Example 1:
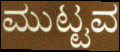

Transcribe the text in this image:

ಮುಟ್ಟವ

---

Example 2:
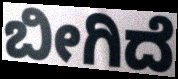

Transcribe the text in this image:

ಬೀಗಿದೆ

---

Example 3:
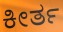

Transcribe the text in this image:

ಕೀರ್ತ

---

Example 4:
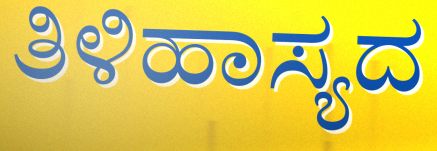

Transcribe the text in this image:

ತಿಳಿಹಾಸ್ಯದ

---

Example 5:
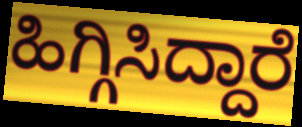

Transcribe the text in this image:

ಹಿಗ್ಗಿಸಿದ್ದಾರೆ